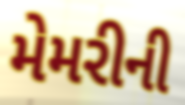
મેમરીની